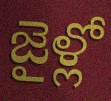
జైళ్లో